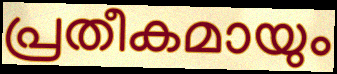
പ്രതീകമായും